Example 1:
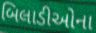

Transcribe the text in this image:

બિલાડીઓના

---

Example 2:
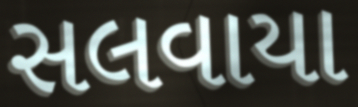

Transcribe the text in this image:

સલવાયા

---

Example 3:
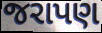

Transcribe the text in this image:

જરાપણ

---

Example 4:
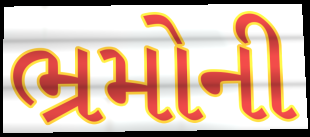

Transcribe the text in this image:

ભ્રમોની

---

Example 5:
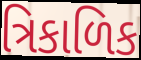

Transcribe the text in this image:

ત્રિકાળિક